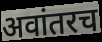
अवांतरच